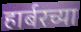
हार्बरच्या